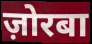
ज़ोरबा